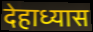
देहाध्यास